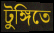
টুঙ্গিতে